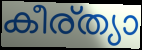
കീര്ത്യാ